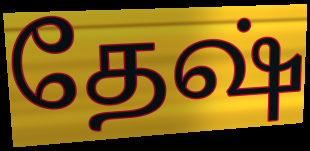
தேஷ்